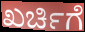
ಖರ್ಚಿಗೆ